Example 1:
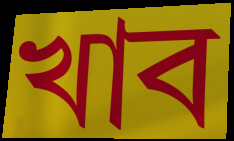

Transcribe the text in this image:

খাব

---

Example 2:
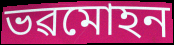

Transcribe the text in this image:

ভৱমোহন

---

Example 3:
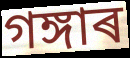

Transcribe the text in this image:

গঙ্গাৰ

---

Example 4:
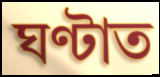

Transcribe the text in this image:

ঘণ্টাত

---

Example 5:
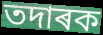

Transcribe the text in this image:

তদাৰক